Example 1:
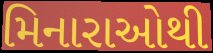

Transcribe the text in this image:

મિનારાઓથી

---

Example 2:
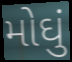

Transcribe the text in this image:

મોઘું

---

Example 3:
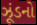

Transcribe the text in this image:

ઝૂંડનો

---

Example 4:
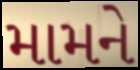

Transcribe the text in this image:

મામને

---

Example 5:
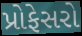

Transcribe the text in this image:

પ્રોફેસરો